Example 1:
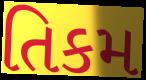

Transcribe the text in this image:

તિકમ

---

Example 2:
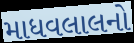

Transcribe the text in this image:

માધવલાલનો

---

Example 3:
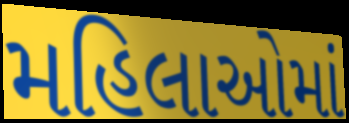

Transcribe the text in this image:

મહિલાઓમાં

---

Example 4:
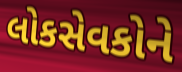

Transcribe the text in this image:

લોકસેવકોને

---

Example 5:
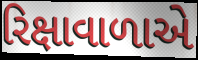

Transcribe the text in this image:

રિક્ષાવાળાએ